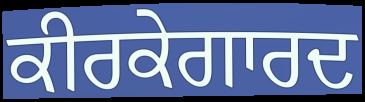
ਕੀਰਕੇਗਾਰਦ